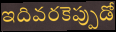
ఇదివరకెప్పుడో